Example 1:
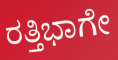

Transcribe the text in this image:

ರತ್ತಿಭಾಗೇ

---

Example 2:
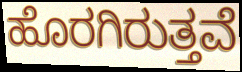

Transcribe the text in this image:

ಹೊರಗಿರುತ್ತವೆ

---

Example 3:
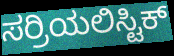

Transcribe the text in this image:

ಸರ್ರಿಯಲಿಸ್ಟಿಕ್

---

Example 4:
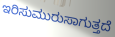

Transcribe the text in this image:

ಇರಿಸುಮುರುಸಾಗುತ್ತದೆ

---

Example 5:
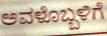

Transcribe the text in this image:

ಅವಳೊಬ್ಬಳಿಗೆ